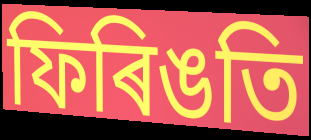
ফিৰিঙতি